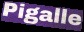
Pigalle